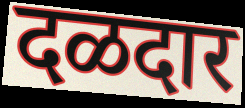
दळदार